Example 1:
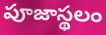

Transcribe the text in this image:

పూజాస్థలం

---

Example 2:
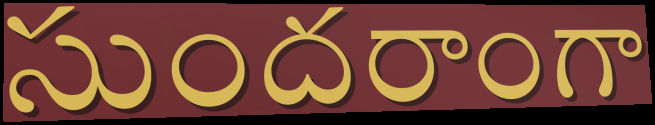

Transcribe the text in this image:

సుందరాంగా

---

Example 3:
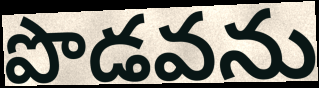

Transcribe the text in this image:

పొడవను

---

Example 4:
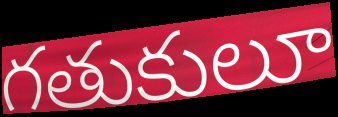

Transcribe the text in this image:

గతుకులూ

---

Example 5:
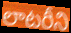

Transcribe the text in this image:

లాటరీని